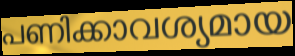
പണിക്കാവശ്യമായ